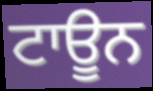
ਟਾਊਨ